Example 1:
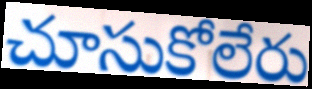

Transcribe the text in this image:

చూసుకోలేరు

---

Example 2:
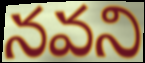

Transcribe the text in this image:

నవని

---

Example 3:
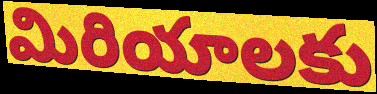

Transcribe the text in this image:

మిరియాలకు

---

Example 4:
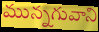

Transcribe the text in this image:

మున్నగువాని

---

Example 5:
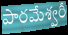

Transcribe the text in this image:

పారమేశ్వరీ